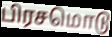
பிரசமொடு